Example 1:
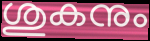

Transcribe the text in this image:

ശുകനും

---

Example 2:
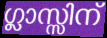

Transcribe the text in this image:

ഗ്ലാസ്സിന്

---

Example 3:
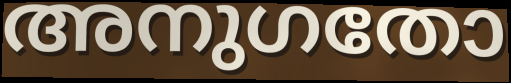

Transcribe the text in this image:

അനുഗതോ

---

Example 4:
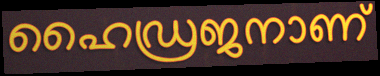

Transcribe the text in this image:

ഹൈഡ്രജനാണ്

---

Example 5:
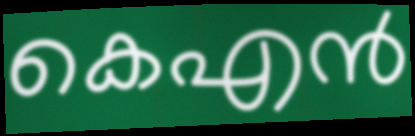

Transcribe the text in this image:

കെഎൻ